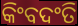
କିଂବଦଂତି